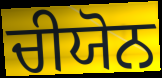
ਚੀਯੋਨ